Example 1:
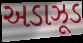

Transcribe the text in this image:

અડાઝૂડ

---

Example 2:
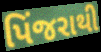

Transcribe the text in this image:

પિંજરાથી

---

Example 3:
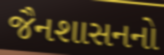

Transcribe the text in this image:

જૈનશાસનનો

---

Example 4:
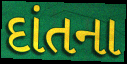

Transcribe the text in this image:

દાંતના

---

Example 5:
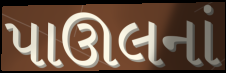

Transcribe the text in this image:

પાઊલનાં